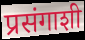
प्रसंगाशी